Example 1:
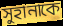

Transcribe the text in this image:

সুহানাকে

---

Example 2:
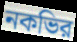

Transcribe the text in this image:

নকভির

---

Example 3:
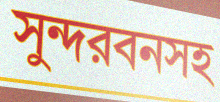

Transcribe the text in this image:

সুন্দরবনসহ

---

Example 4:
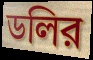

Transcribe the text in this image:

ডলির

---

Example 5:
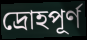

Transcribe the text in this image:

দ্রোহপূর্ণ